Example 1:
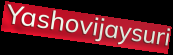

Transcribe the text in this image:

Yashovijaysuri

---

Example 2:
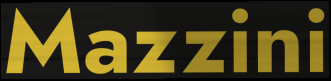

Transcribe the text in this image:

Mazzini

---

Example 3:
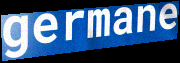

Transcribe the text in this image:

germane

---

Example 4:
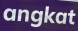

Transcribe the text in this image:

angkat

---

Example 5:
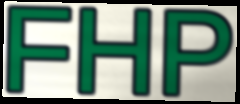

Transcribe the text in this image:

FHP